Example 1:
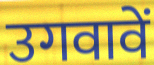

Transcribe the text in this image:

उगवावें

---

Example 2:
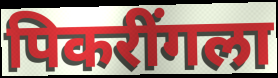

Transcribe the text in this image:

पिकरींगला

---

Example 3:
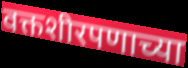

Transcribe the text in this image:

वक्तशीरपणाच्या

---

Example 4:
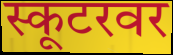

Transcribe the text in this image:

स्कूटरवर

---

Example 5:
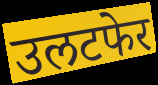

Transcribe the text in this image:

उलटफेर